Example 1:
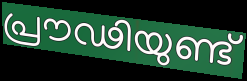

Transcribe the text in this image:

പ്രൗഢിയുണ്ട്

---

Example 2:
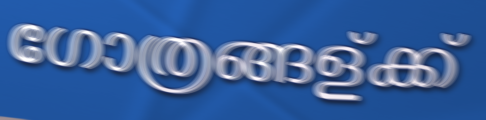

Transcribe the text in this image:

ഗോത്രങ്ങള്ക്ക്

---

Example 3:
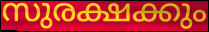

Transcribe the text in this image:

സുരക്ഷക്കും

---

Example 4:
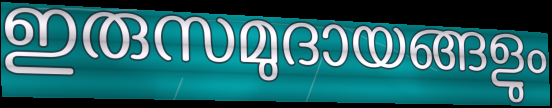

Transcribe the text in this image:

ഇരുസമുദായങ്ങളും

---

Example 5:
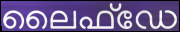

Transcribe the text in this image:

ലൈഫ്ഡേ